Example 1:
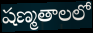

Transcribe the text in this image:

షణ్మతాలలో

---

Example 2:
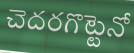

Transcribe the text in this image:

చెదరగొట్టెనో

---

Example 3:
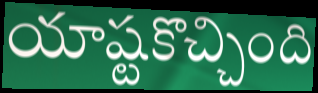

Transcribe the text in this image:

యాష్టకొచ్చింది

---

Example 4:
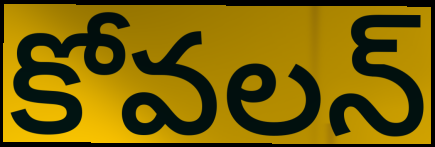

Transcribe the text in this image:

కోవలన్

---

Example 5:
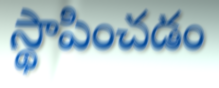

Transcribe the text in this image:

స్థాపించడం